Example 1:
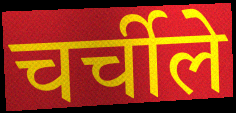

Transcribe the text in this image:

चर्चीले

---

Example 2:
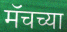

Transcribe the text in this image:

मॅचच्या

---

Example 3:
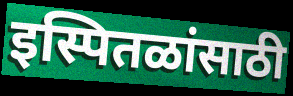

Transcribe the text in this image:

इस्पितळांसाठी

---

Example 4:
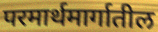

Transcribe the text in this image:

परमार्थमार्गातील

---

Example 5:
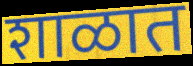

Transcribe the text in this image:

शाळात